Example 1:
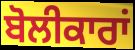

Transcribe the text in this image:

ਬੋਲੀਕਾਰਾਂ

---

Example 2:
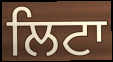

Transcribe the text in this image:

ਲਿਟਾ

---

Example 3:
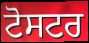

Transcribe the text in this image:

ਟੋਸਟਰ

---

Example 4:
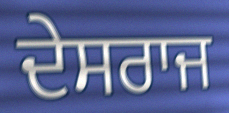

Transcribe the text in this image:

ਦੇਸਰਾਜ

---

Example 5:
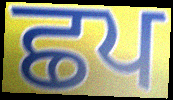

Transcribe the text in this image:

ਛਪ